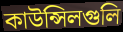
কাউন্সিলগুলি